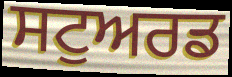
ਸਟੁਅਰਡ